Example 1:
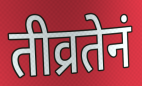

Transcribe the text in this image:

तीव्रतेनं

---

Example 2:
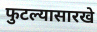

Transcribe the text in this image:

फुटल्यासारखे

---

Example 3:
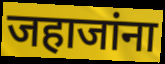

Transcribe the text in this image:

जहाजांना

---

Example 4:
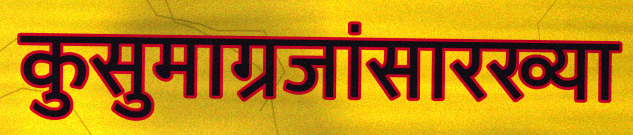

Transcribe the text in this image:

कुसुमाग्रजांसारख्या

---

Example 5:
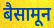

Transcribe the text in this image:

बैसामून